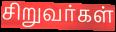
சிறுவர்கள்